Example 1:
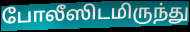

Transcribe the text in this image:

போலீஸிடமிருந்து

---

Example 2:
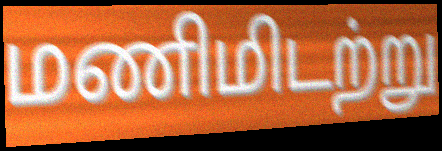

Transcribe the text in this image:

மணிமிடற்று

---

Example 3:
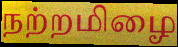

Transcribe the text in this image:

நற்றமிழை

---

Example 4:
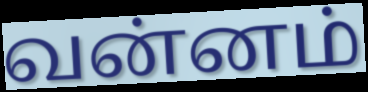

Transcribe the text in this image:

வன்னம்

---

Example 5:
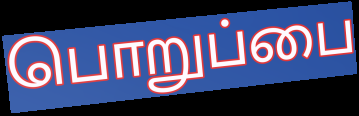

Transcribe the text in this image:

பொறுப்பை